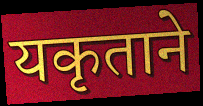
यकृताने